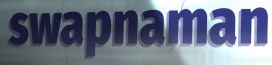
swapnaman